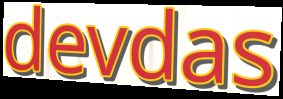
devdas